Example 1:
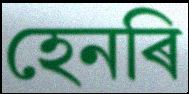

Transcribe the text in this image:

হেনৰি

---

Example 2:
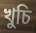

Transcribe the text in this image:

খুচি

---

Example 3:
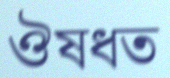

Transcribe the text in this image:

ঔষধত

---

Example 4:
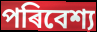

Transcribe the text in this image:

পৰিবেশ্য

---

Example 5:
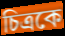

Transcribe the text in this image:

চিত্ৰকে